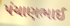
પંચાણભાઈ